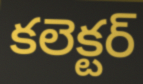
కలెక్టర్